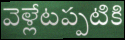
వెళ్లేటప్పటికి